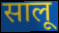
सालू